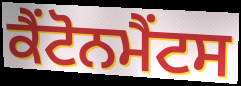
ਕੈਂਟੋਨਮੈਂਟਸ